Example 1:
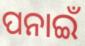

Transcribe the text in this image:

ପନାଇଁ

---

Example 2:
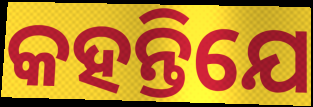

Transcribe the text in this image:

କହନ୍ତିଯେ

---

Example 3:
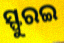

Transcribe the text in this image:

ସ୍ଫୁରଇ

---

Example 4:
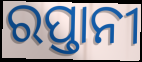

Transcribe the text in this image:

ରପ୍ତାନୀ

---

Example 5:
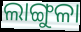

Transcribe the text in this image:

ଲାଙ୍ଗୁଳା